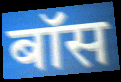
बॉस